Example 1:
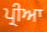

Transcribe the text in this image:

ਪ੍ਰੀਆ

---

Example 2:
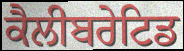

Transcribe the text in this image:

ਕੈਲੀਬਰੇਟਿਡ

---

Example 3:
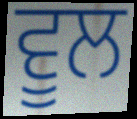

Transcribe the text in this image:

ਵੂਲ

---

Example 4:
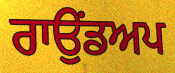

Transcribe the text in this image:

ਰਾਉਂਡਅਪ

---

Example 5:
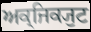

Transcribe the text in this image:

ਅਕ੍ਜਿਕ੍ਯੁਟ